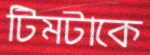
টিমটাকে